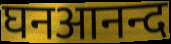
घनआनन्द